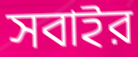
সবাইর